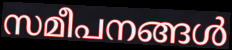
സമീപനങ്ങൾ